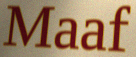
Maaf